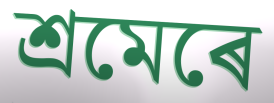
শ্ৰমেৰে